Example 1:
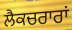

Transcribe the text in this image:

ਲੈਕਚਰਾਰਾਂ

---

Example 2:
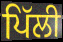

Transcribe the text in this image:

ਪਿੱਲੀ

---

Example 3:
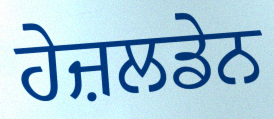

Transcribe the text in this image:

ਹੇਜ਼ਲਡੇਨ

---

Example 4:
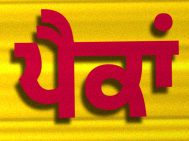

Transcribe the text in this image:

ਪੈਕਾਂ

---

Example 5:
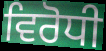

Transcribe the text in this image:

ਵਿਰੋਧੀ